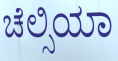
ಚೆಲ್ಸಿಯಾ